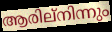
ആരില്നിന്നും